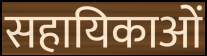
सहायिकाओं